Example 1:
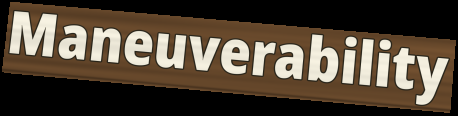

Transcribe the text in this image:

Maneuverability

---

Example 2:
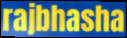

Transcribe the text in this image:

rajbhasha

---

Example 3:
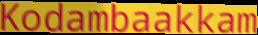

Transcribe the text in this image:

Kodambaakkam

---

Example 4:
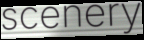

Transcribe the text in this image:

scenery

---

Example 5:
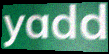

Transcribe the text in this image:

yadd